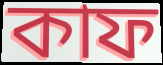
কাফ